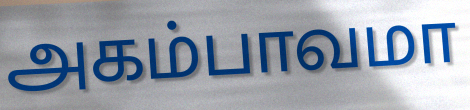
அகம்பாவமா